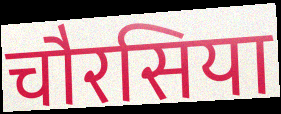
चौरसिया